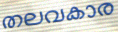
തലവകാര